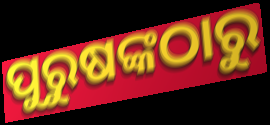
ପୁରୁଷଙ୍କଠାରୁ